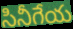
సినీగేయ